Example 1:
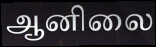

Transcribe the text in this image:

ஆனிலை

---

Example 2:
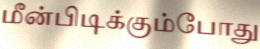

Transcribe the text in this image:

மீன்பிடிக்கும்போது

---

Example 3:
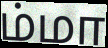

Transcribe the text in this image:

ம்மா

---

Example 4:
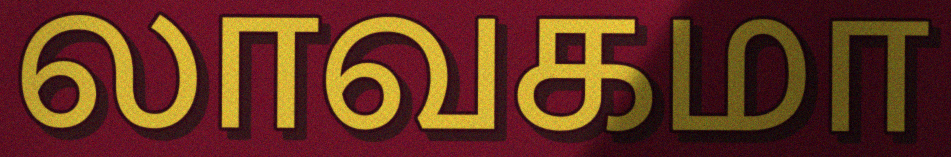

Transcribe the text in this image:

லாவகமா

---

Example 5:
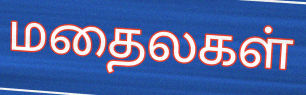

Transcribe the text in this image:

மதைலகள்